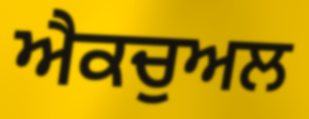
ਐਕਚੁਅਲ